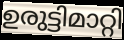
ഉരുട്ടിമാറ്റി